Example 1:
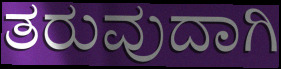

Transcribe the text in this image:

ತರುವುದಾಗಿ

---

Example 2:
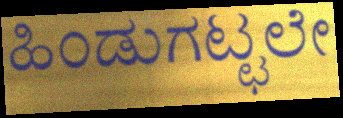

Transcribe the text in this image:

ಹಿಂಡುಗಟ್ಟಲೇ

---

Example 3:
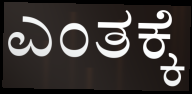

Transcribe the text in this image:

ಎಂತಕ್ಕೆ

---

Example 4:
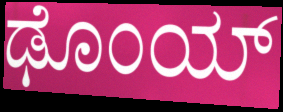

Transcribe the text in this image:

ಢೊಂಯ್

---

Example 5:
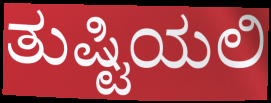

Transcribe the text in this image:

ತುಷ್ಟಿಯಲಿ